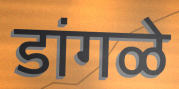
डांगळे